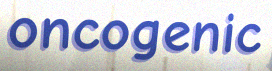
oncogenic